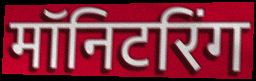
मॉनिटरिंग